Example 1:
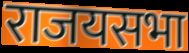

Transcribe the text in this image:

राजयसभा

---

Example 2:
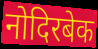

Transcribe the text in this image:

नोदिरबेक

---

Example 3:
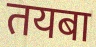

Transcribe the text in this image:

तयबा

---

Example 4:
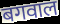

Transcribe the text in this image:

बगवाल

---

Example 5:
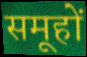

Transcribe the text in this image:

समूहों